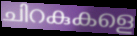
ചിറകുകളെ